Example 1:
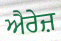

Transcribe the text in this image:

ਐਰੇਜ਼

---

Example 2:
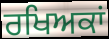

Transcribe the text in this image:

ਰਖਿਅਕਾਂ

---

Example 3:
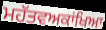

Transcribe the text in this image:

ਮਹੱਤਵਅਕਾਂਖਿਆ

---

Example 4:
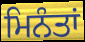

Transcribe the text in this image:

ਮਿਨੰਤਾਂ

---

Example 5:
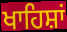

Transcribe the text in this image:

ਖਾਹਿਸ਼ਾਂ